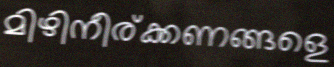
മിഴിനീര്ക്കണങ്ങളെ